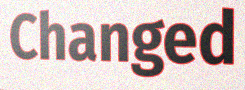
Changed